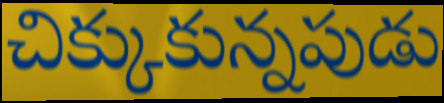
చిక్కుకున్నపుడు